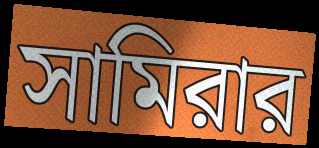
সামিরার